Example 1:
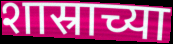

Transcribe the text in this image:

शास्राच्या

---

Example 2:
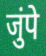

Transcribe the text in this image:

जुंपे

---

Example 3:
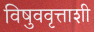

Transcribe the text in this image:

विषुववृत्ताशी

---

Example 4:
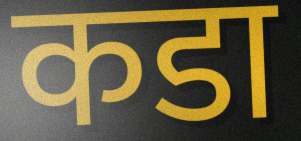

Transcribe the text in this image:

कडा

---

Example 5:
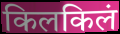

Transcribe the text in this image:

किलकिलं